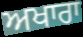
ਅਖਾਰਾ